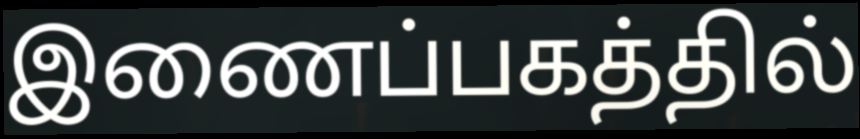
இணைப்பகத்தில்